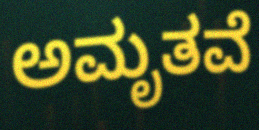
ಅಮೃತವೆ